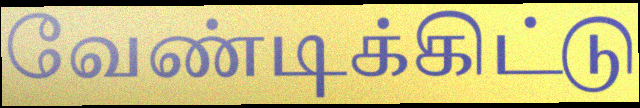
வேண்டிக்கிட்டு